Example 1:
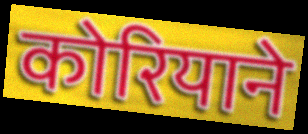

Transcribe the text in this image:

कोरियाने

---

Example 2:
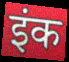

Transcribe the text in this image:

इंक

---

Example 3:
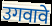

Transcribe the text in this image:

उगवावे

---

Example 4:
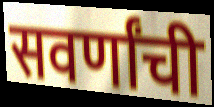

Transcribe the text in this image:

सवर्णांची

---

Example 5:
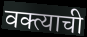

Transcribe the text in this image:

वक्त्याची